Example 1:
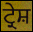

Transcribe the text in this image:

ਟ੍ਰੇਸ਼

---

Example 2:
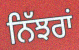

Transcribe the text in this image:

ਨਿੱਝਰਾਂ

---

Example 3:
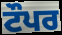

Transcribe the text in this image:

ਟੌਪਰ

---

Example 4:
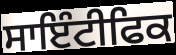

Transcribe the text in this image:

ਸਾਇੰਟੀਫਿਕ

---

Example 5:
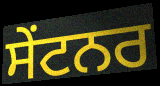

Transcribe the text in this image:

ਸੇਂਟਨਰ